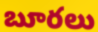
బూరలు